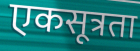
एकसूत्रता